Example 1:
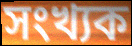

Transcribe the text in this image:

সংখ্যক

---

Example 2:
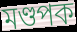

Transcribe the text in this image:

মণ্ডপক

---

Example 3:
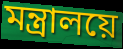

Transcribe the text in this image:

মন্ত্ৰালয়ে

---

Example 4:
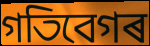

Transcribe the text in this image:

গতিবেগৰ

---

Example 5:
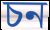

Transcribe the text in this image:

চন